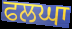
ਫਲਘਾ